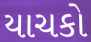
યાચકો